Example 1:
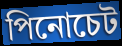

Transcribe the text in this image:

পিনোচেট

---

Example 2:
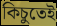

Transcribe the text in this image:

কিচুতেই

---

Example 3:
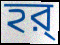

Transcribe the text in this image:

হর্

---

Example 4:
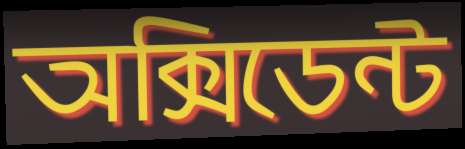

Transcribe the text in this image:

অক্সিডেন্ট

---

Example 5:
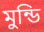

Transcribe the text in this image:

মুন্ডি